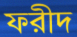
ফরীদ